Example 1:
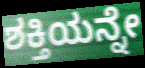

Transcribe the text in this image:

ಶಕ್ತಿಯನ್ನೇ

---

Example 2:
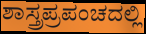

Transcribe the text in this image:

ಶಾಸ್ತ್ರಪ್ರಪಂಚದಲ್ಲಿ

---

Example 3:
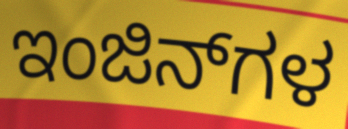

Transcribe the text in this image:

ಇಂಜಿನ್‌ಗಳ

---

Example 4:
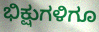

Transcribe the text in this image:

ಭಿಕ್ಷುಗಳಿಗೂ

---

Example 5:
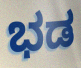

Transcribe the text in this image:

ಭಡ